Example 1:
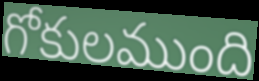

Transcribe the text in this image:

గోకులముంది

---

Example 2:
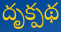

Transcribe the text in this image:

దృక్పథ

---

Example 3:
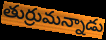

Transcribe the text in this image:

తుర్రుమన్నాడు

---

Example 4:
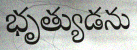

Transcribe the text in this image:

భృత్యుడను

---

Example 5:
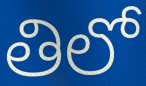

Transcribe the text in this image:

తిలో